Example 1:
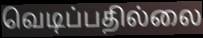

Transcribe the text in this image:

வெடிப்பதில்லை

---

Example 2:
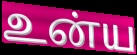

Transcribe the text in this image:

உன்ய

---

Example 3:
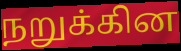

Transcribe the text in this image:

நறுக்கின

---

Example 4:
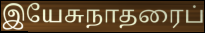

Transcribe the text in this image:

இயேசுநாதரைப்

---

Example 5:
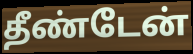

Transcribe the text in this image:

தீண்டேன்